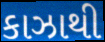
કાઝાથી